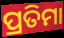
ପ୍ରତିମା